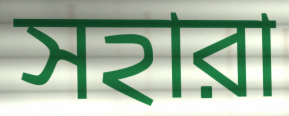
সহারা